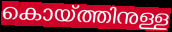
കൊയ്ത്തിനുള്ള